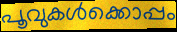
പൂവുകൾക്കൊപ്പം